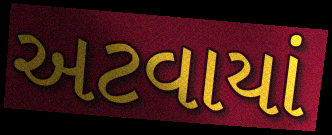
અટવાયાં